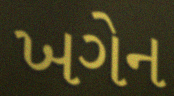
ખગેન